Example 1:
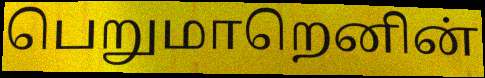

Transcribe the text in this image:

பெறுமாறெனின்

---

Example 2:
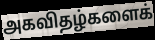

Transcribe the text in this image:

அகவிதழ்களைக்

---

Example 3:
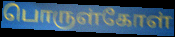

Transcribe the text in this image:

பொருள்கோள்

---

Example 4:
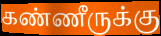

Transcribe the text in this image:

கண்ணீருக்கு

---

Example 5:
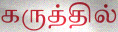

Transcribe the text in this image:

கருத்தில்